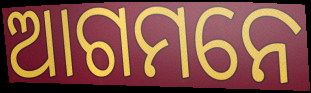
ଆଗମନେ